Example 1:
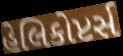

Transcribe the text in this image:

હેલિકોપ્ટર્સ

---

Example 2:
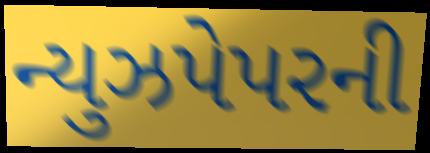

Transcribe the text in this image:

ન્યુઝપેપરની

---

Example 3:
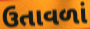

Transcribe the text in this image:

ઉતાવળાં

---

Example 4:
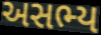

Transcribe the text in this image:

અસભ્ય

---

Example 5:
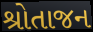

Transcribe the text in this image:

શ્રોતાજન